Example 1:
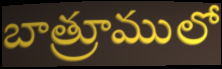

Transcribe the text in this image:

బాత్రూములో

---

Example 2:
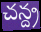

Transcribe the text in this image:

చన్ద్ర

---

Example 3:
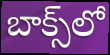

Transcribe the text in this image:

బాక్స్‌లో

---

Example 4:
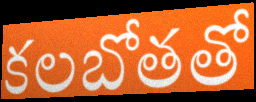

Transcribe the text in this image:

కలబోతతో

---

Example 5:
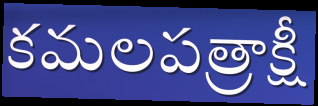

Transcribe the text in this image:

కమలపత్రాక్షీ